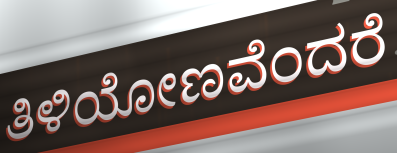
ತಿಳಿಯೋಣವೆಂದರೆ